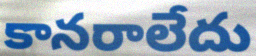
కానరాలేదు